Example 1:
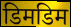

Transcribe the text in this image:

डिमडिम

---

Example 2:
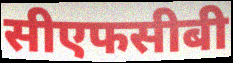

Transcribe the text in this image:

सीएफसीबी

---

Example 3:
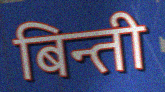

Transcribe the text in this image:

बिन्ती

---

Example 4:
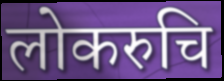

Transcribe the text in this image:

लोकरुचि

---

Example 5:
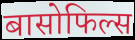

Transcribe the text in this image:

बासोफिल्स